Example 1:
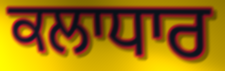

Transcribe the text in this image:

ਕਲਾਧਾਰ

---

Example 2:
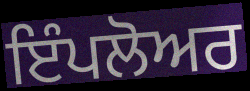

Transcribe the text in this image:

ਇੰਪਲੋਅਰ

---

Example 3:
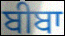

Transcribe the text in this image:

ਬੀਬਾ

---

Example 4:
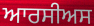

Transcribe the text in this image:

ਆਰਸੀਅਸ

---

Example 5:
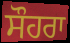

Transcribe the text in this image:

ਸੌਹਰਾ